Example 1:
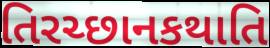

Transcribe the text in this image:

તિરચ્છાનકથાતિ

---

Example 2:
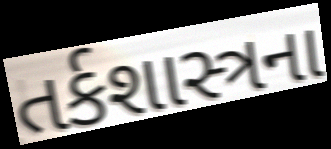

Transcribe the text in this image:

તર્કશાસ્ત્રના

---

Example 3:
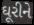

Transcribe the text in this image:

ઘૂરીને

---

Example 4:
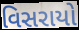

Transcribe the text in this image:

વિસરાયો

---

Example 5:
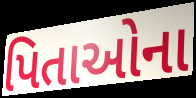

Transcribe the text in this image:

પિતાઓના